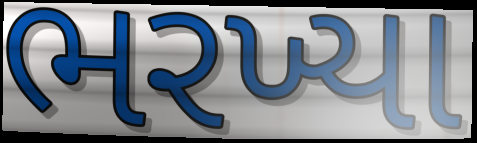
ભરખ્યા